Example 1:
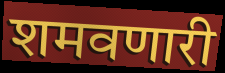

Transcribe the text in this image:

शमवणारी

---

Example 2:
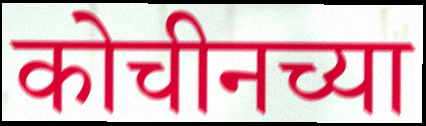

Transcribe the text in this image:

कोचीनच्या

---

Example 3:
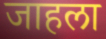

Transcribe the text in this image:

जाहला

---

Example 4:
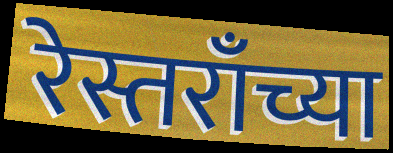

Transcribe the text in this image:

रेस्तराँच्या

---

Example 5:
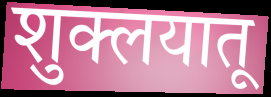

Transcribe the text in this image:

शुक्लयातू